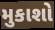
મુકાશો